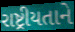
રાષ્ટ્રીયતાને